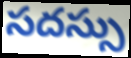
సదస్సు